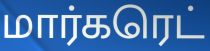
மார்கரெட்